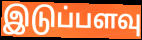
இடுப்பளவு